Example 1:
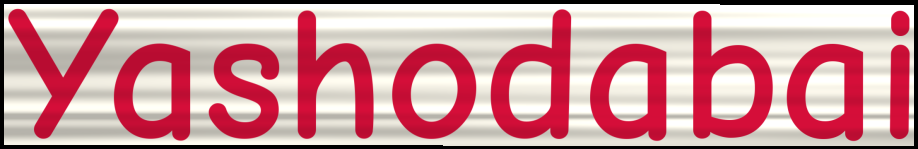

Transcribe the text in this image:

Yashodabai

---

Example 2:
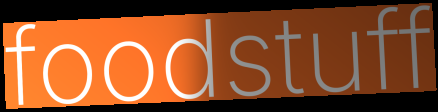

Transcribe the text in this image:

foodstuff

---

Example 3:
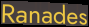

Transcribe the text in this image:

Ranades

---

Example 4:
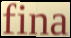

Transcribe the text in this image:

fina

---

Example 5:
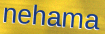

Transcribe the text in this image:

nehama